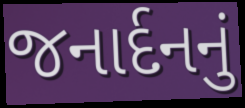
જનાર્દનનું